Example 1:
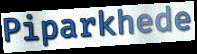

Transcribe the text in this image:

Piparkhede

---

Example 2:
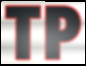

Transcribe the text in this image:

TP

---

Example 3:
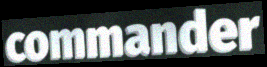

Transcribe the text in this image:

commander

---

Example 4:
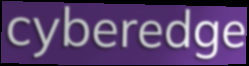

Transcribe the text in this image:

cyberedge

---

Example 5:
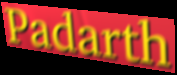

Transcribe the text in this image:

Padarth